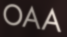
OAA